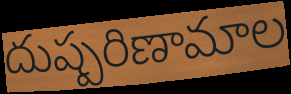
దుష్పరిణామాల